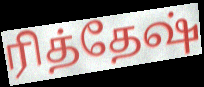
ரித்தேஷ்